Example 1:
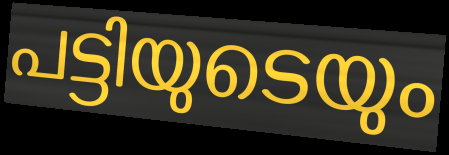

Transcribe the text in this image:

പട്ടിയുടെയും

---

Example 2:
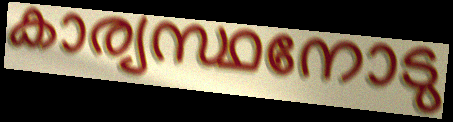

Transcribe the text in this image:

കാര്യസ്ഥനോടു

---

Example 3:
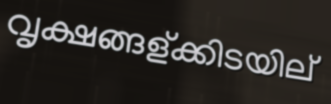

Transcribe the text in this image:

വൃക്ഷങ്ങള്ക്കിടയില്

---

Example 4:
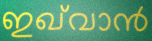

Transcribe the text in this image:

ഇഖ്‌വാൻ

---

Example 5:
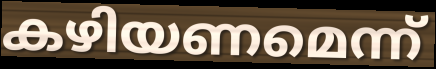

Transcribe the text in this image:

കഴിയണമെന്ന്